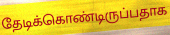
தேடிக்கொண்டிருப்பதாக